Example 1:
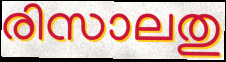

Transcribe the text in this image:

രിസാലതു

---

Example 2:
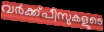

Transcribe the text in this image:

വർക്ക്പീസുകളുടെ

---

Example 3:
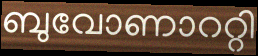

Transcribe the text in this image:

ബുവോണാററ്റി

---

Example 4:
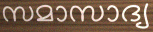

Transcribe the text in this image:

സമാസാദ്യ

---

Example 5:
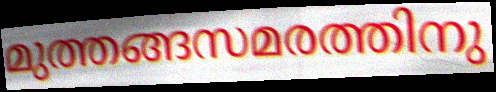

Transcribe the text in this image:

മുത്തങ്ങസമരത്തിനു